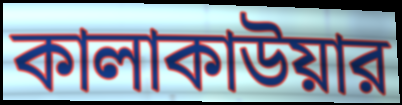
কালাকাউয়ার